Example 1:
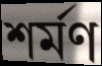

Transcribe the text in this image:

শর্মণ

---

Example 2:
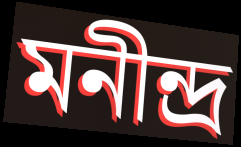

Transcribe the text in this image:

মনীন্দ্র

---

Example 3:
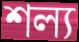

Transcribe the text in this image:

শল্য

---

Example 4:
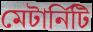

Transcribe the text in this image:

মেটার্নিটি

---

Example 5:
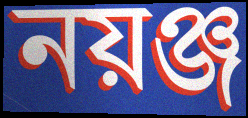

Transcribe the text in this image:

নয়ঞ্জ